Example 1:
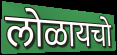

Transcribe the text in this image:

लोळायचो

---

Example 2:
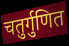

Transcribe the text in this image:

चतुर्गुणित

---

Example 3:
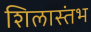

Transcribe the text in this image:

शिलास्तंभ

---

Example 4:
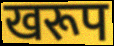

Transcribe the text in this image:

खरूप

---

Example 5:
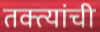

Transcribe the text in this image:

तक्त्यांची